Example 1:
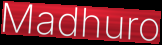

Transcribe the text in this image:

Madhuro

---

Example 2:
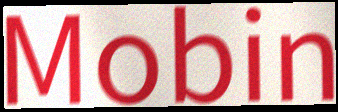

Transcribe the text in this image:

Mobin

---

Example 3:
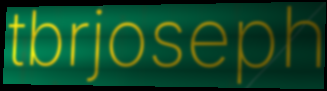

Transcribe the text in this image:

tbrjoseph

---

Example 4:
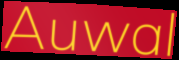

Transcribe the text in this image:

Auwal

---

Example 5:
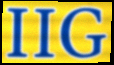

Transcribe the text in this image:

IIG